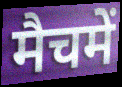
मैचमें